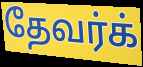
தேவர்க்